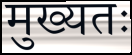
मुख्यतः